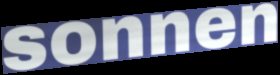
sonnen